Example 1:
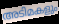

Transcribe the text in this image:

അടിമകളും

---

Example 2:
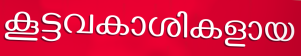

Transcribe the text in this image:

കൂട്ടവകാശികളായ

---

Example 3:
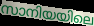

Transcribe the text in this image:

സാനിയയിലെ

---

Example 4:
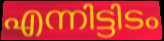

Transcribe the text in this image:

എന്നിട്ടിടം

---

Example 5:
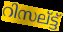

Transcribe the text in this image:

റിസല്ട്ട്